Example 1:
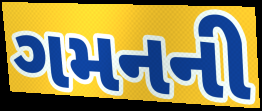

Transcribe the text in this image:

ગમનની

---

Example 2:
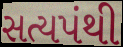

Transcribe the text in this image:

સત્યપંથી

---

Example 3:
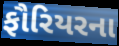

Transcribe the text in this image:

ફૌરિયરના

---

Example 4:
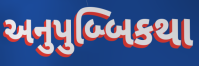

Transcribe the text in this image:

અનુપુબ્બિકથા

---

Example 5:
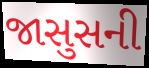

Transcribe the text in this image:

જાસુસની